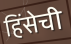
हिंसेची